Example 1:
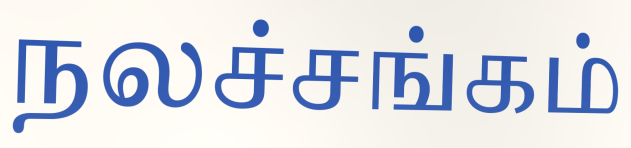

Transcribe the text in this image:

நலச்சங்கம்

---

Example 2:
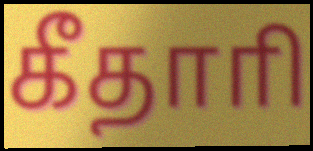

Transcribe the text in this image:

கீதாரி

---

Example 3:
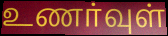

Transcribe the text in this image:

உணர்வுள்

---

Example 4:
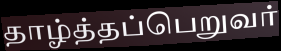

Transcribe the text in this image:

தாழ்த்தப்பெறுவர்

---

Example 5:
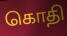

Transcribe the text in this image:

கொதி